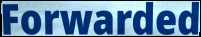
Forwarded